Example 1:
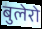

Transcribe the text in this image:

बुलेरो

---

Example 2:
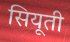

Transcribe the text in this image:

सियूती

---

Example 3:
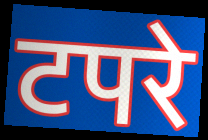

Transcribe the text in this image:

टपरे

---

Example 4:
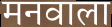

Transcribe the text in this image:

मनवाला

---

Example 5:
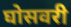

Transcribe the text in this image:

घोसवरी